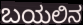
ಬಯಲಿನ